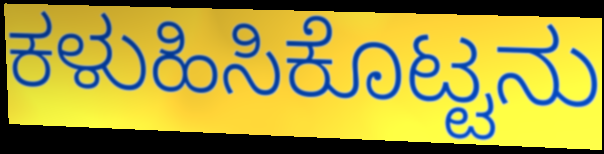
ಕಳುಹಿಸಿಕೊಟ್ಟನು